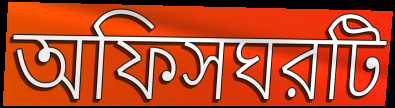
অফিসঘরটি